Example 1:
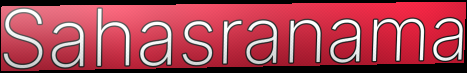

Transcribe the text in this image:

Sahasranama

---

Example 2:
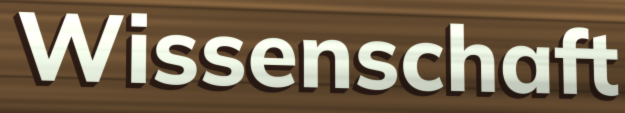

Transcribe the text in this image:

Wissenschaft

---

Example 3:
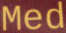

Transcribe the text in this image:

Med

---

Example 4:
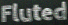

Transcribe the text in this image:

Fluted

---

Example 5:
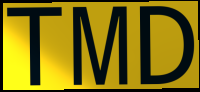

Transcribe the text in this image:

TMD